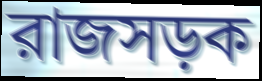
রাজসড়ক